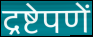
द्रष्टेपणें